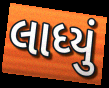
લાધ્યું